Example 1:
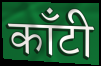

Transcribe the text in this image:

काँटी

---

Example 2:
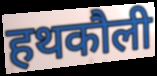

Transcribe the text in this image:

हथकौली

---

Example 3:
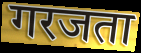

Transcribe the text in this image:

गरजता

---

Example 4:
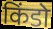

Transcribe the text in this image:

किंडो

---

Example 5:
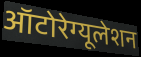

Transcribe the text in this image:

ऑटोरेग्यूलेशन